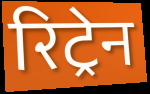
रिट्रेन